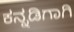
ಕನ್ನಡಿಗಾಗಿ